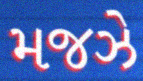
મજઝે